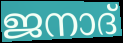
ജനാദ്